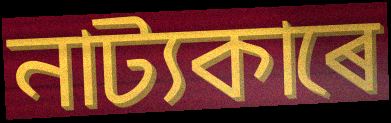
নাট্যকাৰে